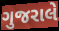
ગુજરાલે